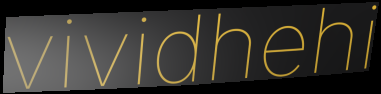
vividhehi